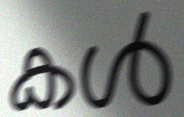
കൾ